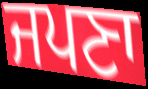
ਜਪਣਾ